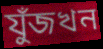
যুঁজখন